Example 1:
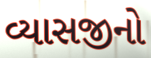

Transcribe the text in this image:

વ્યાસજીનો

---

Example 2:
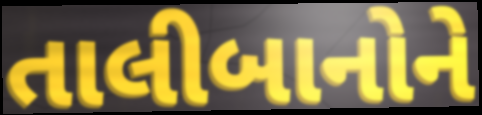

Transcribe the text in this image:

તાલીબાનોને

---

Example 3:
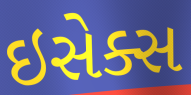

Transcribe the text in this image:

ઇસેક્સ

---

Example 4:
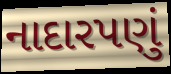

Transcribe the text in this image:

નાદારપણું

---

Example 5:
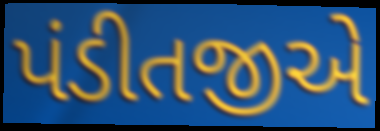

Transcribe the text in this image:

પંડીતજીએ